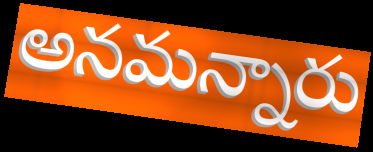
అనమన్నారు